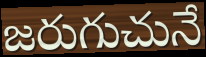
జరుగుచునే